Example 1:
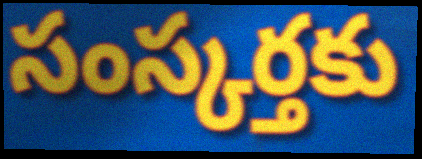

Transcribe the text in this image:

సంస్కర్తకు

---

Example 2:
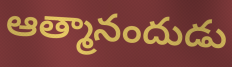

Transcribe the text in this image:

ఆత్మానందుడు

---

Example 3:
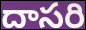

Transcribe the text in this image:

దాసరి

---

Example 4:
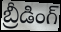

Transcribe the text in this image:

బ్రీడింగ్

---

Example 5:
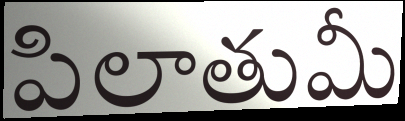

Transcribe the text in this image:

పిలాతుమీ